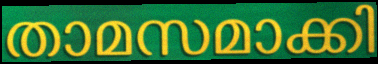
താമസമാക്കി